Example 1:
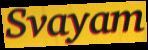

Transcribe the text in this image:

Svayam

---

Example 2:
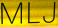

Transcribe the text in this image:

MLJ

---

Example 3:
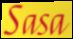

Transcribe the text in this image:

Sasa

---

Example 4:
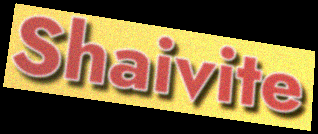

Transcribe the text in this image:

Shaivite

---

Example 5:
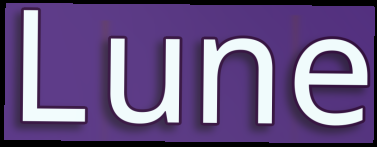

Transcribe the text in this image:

Lune